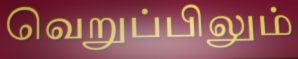
வெறுப்பிலும்